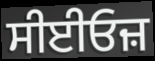
ਸੀਈਓਜ਼